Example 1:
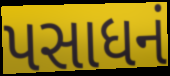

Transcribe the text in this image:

પસાધનં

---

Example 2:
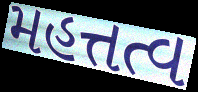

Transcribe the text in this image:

મહત્તત્વ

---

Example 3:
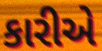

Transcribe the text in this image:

કારીએ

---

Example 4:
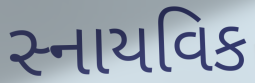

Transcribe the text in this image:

સ્નાયવિક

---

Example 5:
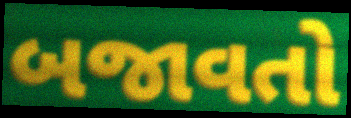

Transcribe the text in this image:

બજાવતો